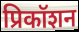
प्रिकॉशन